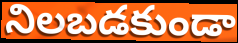
నిలబడకుండా